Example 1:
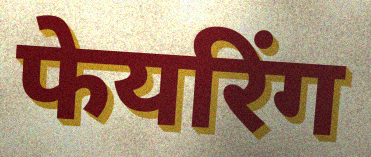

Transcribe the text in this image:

फेयरिंग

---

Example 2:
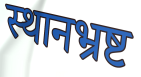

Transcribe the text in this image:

स्थानभ्रष्ट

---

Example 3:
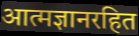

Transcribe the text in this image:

आत्मज्ञानरहित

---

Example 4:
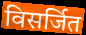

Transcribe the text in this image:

विसर्जित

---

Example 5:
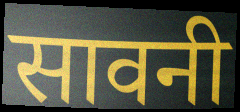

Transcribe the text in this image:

सावनी